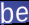
be